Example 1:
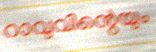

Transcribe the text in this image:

റാവുവിന്റെയും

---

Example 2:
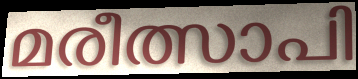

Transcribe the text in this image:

മരീത്സാപി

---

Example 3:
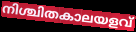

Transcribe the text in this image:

നിശ്ചിതകാലയളവ്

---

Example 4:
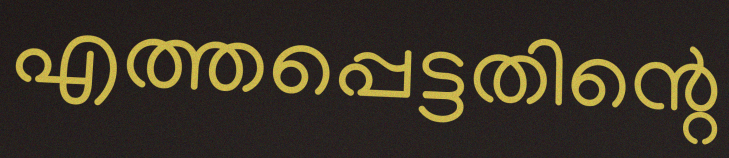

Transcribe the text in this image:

എത്തപ്പെട്ടതിന്റെ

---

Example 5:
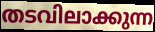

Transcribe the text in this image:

തടവിലാക്കുന്ന